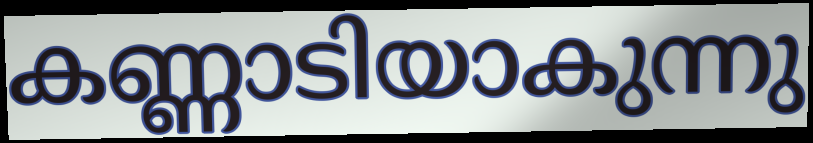
കണ്ണാടിയാകുന്നു